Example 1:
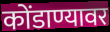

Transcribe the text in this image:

कोंडाण्यावर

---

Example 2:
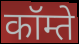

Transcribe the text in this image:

कॉम्ते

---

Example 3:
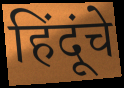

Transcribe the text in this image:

हिंदूंचे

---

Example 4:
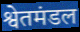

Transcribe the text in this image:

श्वेतमंडल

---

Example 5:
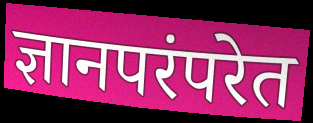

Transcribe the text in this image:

ज्ञानपरंपरेत